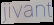
jivant